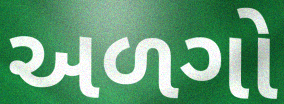
અળગો